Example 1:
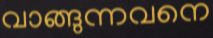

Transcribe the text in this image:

വാങ്ങുന്നവനെ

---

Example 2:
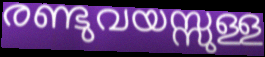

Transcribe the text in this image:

രണ്ടുവയസ്സുള്ള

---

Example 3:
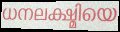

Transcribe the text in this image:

ധനലക്ഷ്മിയെ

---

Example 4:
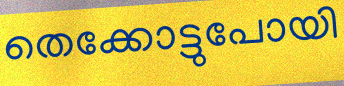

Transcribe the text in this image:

തെക്കോട്ടുപോയി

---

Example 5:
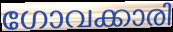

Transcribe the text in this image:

ഗോവക്കാരി